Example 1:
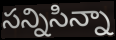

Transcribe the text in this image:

సన్నిసిన్నా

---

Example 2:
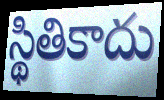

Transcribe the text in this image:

స్థితికాదు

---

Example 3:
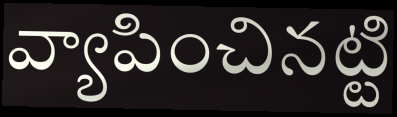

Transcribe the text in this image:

వ్యాపించినట్టి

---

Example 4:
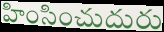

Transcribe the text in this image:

హింసించుదురు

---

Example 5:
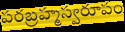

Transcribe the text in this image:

పరబ్రహ్మస్వరూపం